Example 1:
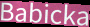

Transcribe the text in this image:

Babicka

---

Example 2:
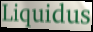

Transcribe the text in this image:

Liquidus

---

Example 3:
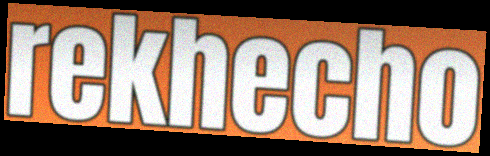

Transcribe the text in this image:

rekhecho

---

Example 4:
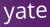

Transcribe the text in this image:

yate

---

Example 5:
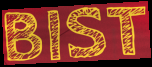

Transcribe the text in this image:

BIST